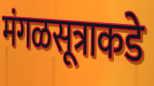
मंगळसूत्राकडे